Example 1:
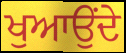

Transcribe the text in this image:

ਖੁਆਉਂਦੇ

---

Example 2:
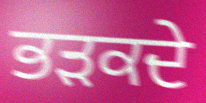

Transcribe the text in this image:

ਭੜਕਦੇ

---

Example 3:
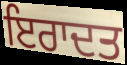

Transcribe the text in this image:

ਇਰਾਦਤ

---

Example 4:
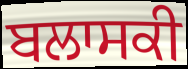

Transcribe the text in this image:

ਬਲਾਸਕੀ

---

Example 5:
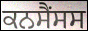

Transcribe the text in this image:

ਕਨਸੈਂਸਸ